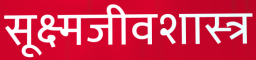
सूक्ष्मजीवशास्त्र